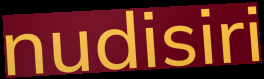
nudisiri